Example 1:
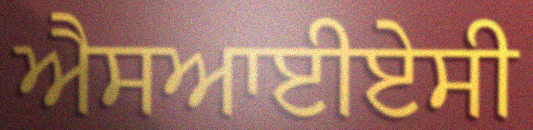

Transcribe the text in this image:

ਐਸਆਈਏਸੀ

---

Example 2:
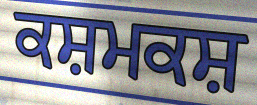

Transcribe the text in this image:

ਕਸ਼ਮਕਸ਼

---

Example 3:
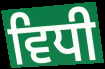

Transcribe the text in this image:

ਵਿਧੀ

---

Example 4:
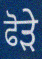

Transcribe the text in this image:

ਫੋੜੇ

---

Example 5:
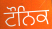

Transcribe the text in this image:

ਟੌਨਿਕ